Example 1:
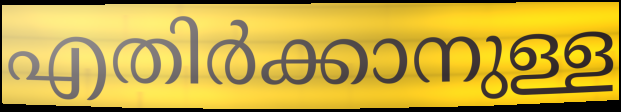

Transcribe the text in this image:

എതിർക്കാനുള്ള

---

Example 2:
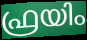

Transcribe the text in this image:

ഫ്രയിം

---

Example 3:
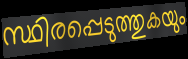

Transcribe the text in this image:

സ്ഥിരപ്പെടുത്തുകയും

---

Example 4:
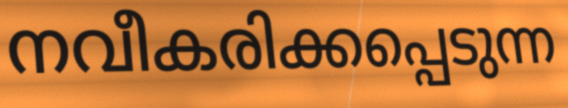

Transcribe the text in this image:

നവീകരിക്കപ്പെടുന്ന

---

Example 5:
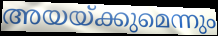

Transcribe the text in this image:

അയയ്ക്കുമെന്നും